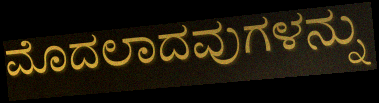
ಮೊದಲಾದವುಗಳನ್ನು